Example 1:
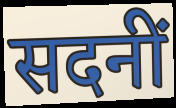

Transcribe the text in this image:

सदनीं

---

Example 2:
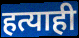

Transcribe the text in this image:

हत्याही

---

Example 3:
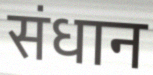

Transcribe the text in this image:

संधान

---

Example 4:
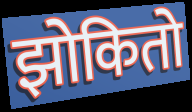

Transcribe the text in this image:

झोकितो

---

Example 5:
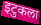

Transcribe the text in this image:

इटुकला